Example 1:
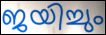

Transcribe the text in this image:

ജയിച്ചും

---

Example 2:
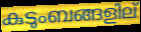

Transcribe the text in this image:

കുടുംബങ്ങളില്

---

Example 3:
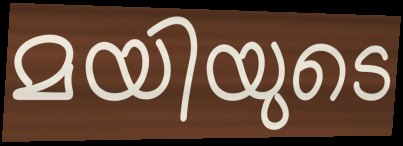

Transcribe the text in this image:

മയിയുടെ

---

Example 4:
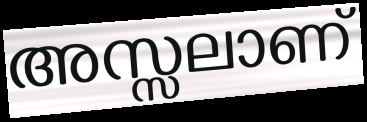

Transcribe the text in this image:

അസ്സലാണ്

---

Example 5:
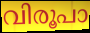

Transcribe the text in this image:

വിരൂപാ